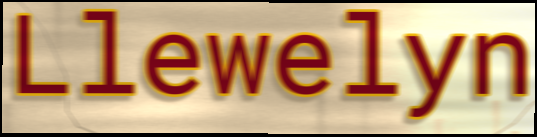
Llewelyn